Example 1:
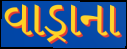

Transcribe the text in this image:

વાડ્રાના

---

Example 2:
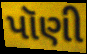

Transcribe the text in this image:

પૉણી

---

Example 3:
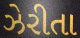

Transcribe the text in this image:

ઝેરીતા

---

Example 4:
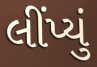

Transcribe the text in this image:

લીંપ્યું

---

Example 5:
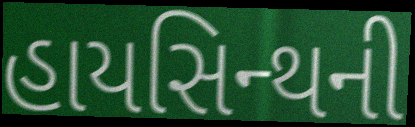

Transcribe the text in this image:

હાયસિન્થની